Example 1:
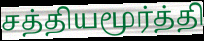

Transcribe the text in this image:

சத்தியமூர்த்தி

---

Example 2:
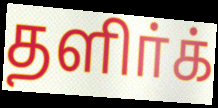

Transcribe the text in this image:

தளிர்க்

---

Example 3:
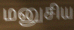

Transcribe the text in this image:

மனுசிய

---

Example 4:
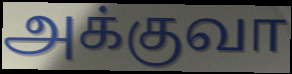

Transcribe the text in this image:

அக்குவா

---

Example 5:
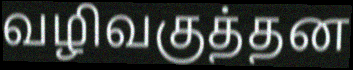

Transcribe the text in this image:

வழிவகுத்தன